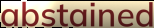
abstained